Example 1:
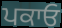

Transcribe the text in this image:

ਪਕਾਓ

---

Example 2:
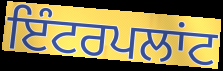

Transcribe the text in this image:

ਇੰਟਰਪਲਾਂਟ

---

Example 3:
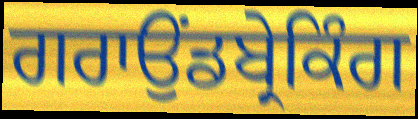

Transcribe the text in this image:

ਗਰਾਉਂਡਬ੍ਰੇਕਿੰਗ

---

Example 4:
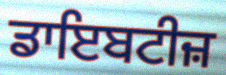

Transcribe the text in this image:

ਡਾਇਬਟੀਜ਼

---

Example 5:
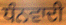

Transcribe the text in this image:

ਧੰਨਵਾਦੀ